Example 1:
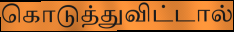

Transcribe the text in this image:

கொடுத்துவிட்டால்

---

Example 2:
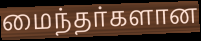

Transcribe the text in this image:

மைந்தர்களான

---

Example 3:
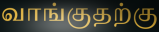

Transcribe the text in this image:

வாங்குதற்கு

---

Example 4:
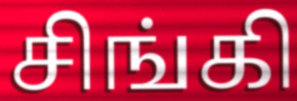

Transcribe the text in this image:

சிங்கி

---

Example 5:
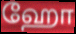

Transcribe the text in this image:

ஹோ